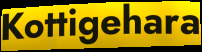
Kottigehara